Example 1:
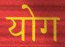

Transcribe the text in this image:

योग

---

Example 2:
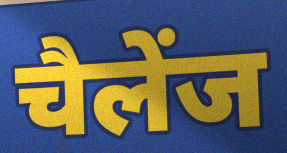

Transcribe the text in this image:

चैलेंज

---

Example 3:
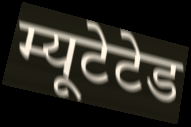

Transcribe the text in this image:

म्यूटेटेड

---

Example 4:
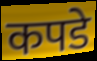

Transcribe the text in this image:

कपडे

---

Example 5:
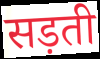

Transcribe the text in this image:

सड़ती